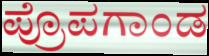
ಪ್ರೊಪಗಾಂಡ